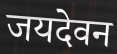
जयदेवन